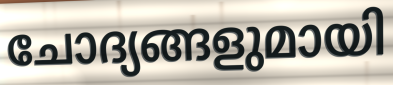
ചോദ്യങ്ങളുമായി